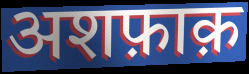
अशफ़ाक़